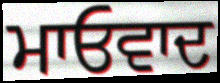
ਮਾਓਵਾਦ